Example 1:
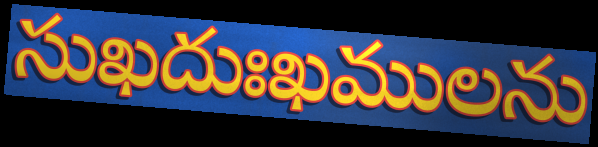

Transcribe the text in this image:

సుఖదుఃఖములను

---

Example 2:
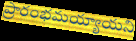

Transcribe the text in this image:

ప్రారంభమయ్యాయని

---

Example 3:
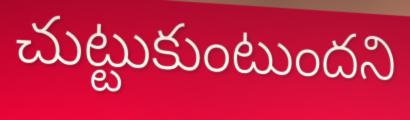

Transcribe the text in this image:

చుట్టుకుంటుందని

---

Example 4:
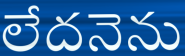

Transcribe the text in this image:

లేదనెను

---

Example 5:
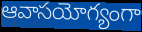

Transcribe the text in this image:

ఆవాసయోగ్యంగా